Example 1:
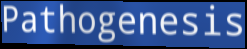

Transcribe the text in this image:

Pathogenesis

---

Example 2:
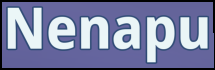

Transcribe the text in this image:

Nenapu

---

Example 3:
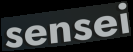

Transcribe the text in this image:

sensei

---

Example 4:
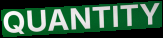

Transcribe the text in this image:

QUANTITY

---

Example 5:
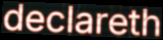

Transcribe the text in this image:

declareth